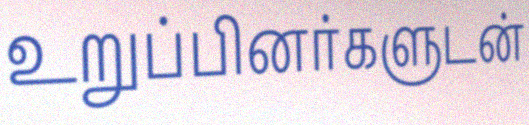
உறுப்பினர்களுடன்